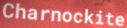
Charnockite